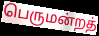
பெருமன்றத்